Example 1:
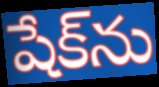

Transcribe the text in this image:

షేక్‌ను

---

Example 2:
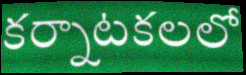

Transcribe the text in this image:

కర్నాటకలలో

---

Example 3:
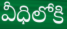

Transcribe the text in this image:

వీధిలోకి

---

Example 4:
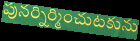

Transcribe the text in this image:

పునర్నిర్మించుటకును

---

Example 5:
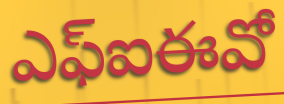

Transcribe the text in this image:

ఎఫ్ఐఈవో